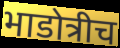
भाडोत्रीच